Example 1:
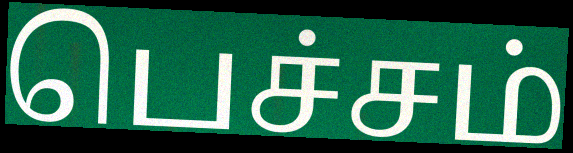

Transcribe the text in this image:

பெச்சம்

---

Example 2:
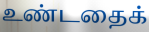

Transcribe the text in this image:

உண்டதைக்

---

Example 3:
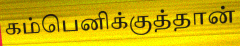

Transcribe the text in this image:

கம்பெனிக்குத்தான்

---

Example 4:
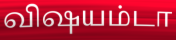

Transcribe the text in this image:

விஷயம்டா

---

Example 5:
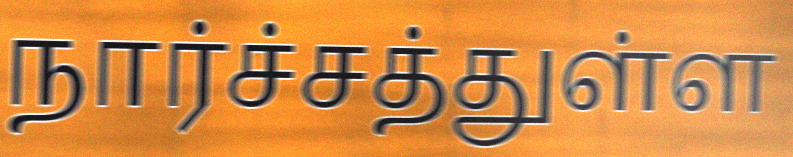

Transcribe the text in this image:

நார்ச்சத்துள்ள